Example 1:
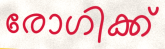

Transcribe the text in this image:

രോഗിക്ക്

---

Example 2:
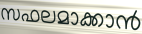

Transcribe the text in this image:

സഫലമാക്കാൻ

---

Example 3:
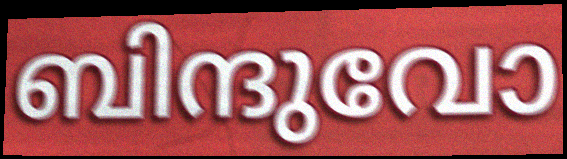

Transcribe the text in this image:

ബിന്ദുവോ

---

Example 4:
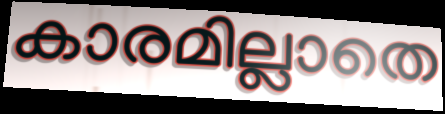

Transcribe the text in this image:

കാരമില്ലാതെ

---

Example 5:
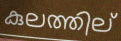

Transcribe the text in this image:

കുലത്തില്